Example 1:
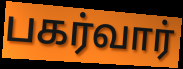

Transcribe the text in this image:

பகர்வார்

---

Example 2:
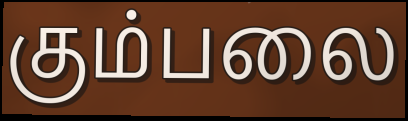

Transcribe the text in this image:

கும்பலை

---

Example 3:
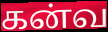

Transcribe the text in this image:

கன்வ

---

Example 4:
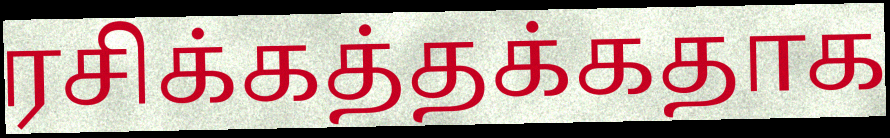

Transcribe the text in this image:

ரசிக்கத்தக்கதாக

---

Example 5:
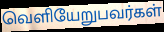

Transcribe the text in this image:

வெளியேறுபவர்கள்